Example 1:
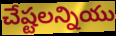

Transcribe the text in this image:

చేష్టలన్నియు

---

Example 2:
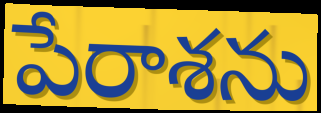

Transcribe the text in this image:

పేరాశను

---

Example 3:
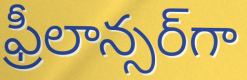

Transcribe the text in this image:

ఫ్రీలాన్సర్‌గా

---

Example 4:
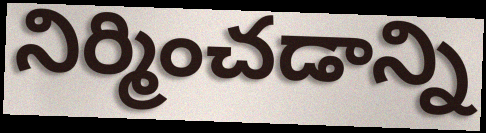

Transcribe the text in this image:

నిర్మించడాన్ని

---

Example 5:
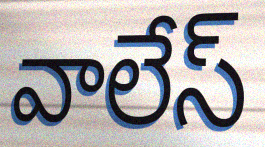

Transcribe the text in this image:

వాలేస్